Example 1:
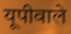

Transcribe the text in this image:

यूपीवाले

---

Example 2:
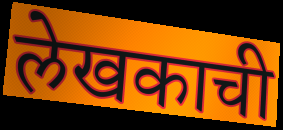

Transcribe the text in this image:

लेखकाची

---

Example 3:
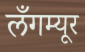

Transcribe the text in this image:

लँगम्यूर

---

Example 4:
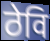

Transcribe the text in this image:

ठेवि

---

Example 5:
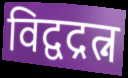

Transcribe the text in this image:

विद्वद्रत्न